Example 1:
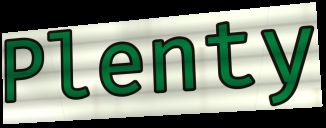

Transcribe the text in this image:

Plenty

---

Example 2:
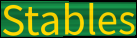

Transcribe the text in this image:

Stables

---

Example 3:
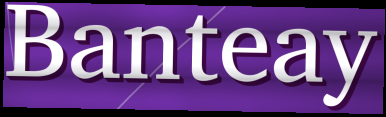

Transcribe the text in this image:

Banteay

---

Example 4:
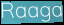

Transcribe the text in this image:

Raaga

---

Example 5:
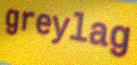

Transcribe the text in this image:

greylag